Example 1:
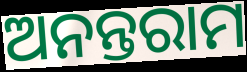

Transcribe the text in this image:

ଅନନ୍ତରାମ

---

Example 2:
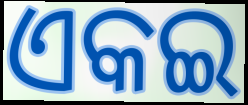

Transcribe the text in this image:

ଏକଇ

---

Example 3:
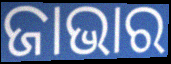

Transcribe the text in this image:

ଜାଭାର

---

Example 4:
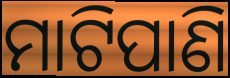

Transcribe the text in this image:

ମାଟିପାଣି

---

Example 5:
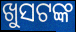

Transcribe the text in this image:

ଖୁସଟଙ୍କ